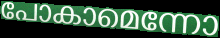
പോകാമെന്നോ